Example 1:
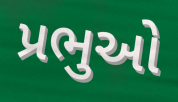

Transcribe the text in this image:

પ્રભુઓ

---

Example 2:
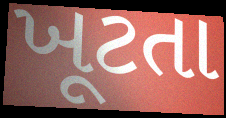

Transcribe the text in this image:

ખૂટતા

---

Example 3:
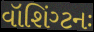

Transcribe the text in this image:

વૉશિંગ્ટનઃ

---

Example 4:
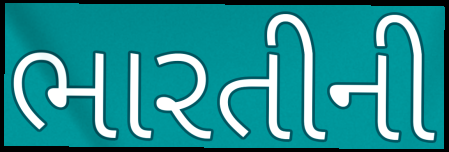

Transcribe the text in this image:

ભારતીની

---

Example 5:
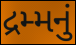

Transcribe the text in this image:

દ્રમ્મનું